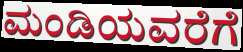
ಮಂಡಿಯವರೆಗೆ